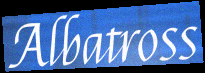
Albatross